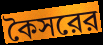
কৈসরের